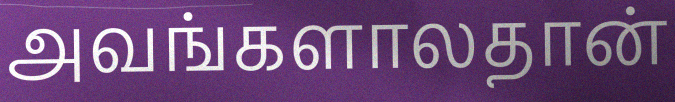
அவங்களாலதான்